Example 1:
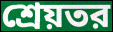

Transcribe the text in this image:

শ্রেয়তর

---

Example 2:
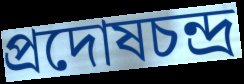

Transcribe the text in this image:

প্রদোষচন্দ্র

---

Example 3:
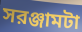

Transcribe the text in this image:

সরঞ্জামটা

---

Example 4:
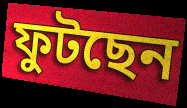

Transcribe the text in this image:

ফুটছেন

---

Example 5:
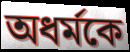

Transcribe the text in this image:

অধর্মকে